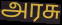
அரசு